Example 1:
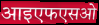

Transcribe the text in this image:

आइएफएसओ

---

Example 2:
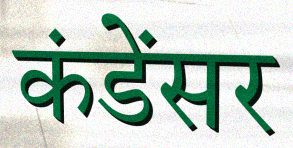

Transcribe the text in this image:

कंडेंसर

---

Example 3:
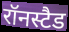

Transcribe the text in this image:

रॉनस्टैड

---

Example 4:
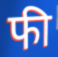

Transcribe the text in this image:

फी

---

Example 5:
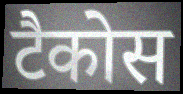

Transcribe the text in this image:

टैकोस